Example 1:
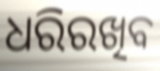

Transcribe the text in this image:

ଧରିରଖିବ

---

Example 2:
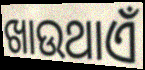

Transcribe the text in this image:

ଖାଉଥାଏଁ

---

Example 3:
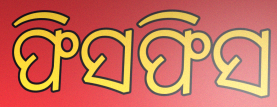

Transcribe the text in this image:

ଫିସଫିସ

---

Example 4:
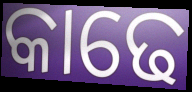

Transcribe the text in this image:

କାଢେ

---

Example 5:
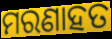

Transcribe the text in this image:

ମରଣାହତ